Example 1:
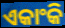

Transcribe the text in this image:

ଏକାଂକି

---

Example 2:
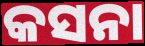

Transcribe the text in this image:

କସନା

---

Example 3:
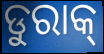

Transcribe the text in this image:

ଡୁରାକ୍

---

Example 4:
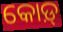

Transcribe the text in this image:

କୋଡ଼୍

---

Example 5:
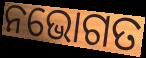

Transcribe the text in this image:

ନଭୋଗତ